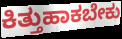
ಕಿತ್ತುಹಾಕಬೇಕು